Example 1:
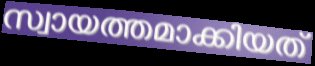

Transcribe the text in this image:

സ്വായത്തമാക്കിയത്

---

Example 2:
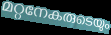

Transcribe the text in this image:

മറ്റനേകരുടെയും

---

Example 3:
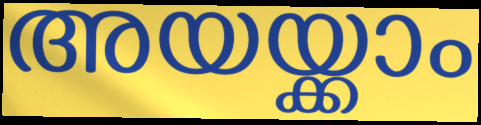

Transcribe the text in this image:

അയയ്ക്കാം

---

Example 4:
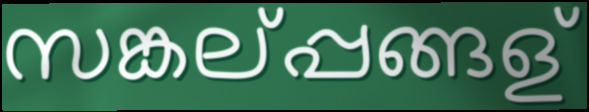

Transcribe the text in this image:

സങ്കല്പ്പങ്ങള്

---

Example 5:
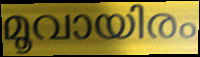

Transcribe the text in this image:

മൂവായിരം